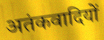
अतंकवादियों